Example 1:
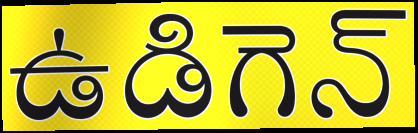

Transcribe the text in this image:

ఉడిగెన్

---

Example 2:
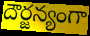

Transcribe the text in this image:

దౌర్జన్యంగా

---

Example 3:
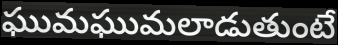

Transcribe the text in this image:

ఘుమఘుమలాడుతుంటే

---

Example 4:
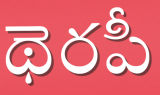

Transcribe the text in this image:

థెరపీ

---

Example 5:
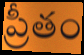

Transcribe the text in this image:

ప్రీతం